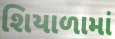
શિયાળામાં